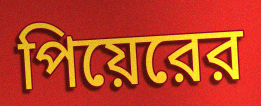
পিয়েরের